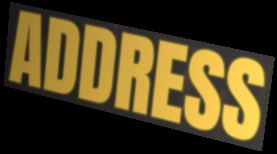
ADDRESS